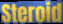
Steroid